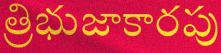
త్రిభుజాకారపు